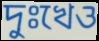
দুঃখেও